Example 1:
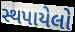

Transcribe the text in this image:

સ્થપાયેલો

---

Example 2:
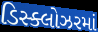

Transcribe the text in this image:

ડિસ્ક્લોઝરમાં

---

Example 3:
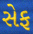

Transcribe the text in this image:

સેફ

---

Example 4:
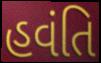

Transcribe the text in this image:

હવંતિ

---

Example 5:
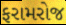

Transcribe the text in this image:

ફરામરોજ